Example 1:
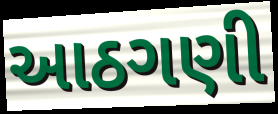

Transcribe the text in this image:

આઠગણી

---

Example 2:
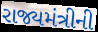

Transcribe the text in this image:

રાજ્યમંત્રીની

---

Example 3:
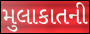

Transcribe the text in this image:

મુલાકાતની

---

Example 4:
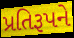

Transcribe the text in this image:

પ્રતિરૂપને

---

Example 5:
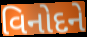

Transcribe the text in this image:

વિનોદને